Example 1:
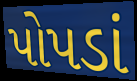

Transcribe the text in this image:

પોપડાં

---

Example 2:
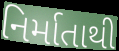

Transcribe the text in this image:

નિર્માતાથી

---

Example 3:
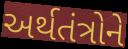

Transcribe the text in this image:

અર્થતંત્રોને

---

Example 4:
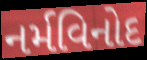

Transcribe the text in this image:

નર્મવિનોદ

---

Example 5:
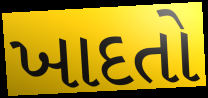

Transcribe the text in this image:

ખાદતો